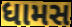
ધામસ